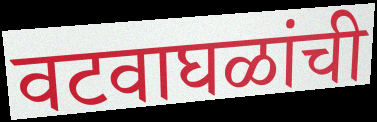
वटवाघळांची